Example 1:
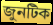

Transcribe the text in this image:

জুনটিক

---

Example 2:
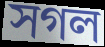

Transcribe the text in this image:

সগল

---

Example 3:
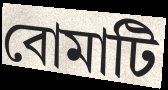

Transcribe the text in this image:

বোমাটি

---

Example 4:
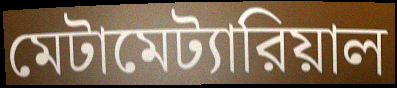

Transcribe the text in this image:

মেটামেট্যারিয়াল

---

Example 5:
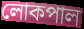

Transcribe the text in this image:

লোকপাল